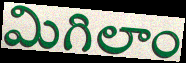
మిగిలాం